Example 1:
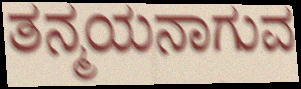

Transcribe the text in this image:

ತನ್ಮಯನಾಗುವ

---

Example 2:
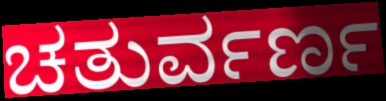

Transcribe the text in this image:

ಚತುರ್ವರ್ಣ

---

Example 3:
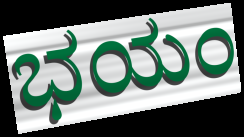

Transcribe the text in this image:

ಭಯಂ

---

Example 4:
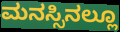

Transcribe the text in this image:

ಮನಸ್ಸಿನಲ್ಲೂ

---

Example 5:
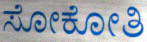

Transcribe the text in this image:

ಸೋಕೋತಿ